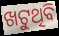
ଖଟୁଥିବି